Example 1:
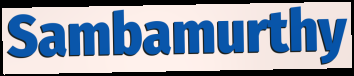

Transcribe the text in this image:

Sambamurthy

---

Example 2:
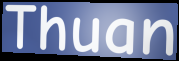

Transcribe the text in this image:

Thuan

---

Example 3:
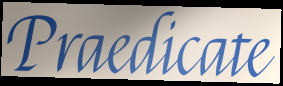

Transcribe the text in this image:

Praedicate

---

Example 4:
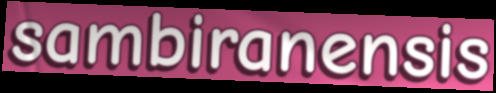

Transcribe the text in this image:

sambiranensis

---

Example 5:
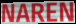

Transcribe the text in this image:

NAREN